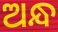
ଅନ୍ଧ